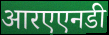
आरएएनडी